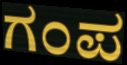
ಗಂಪ